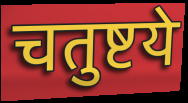
चतुष्टये